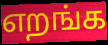
எறங்க